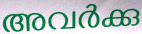
അവർക്കു